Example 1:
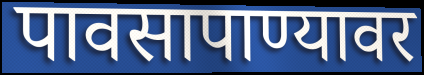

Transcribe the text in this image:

पावसापाण्यावर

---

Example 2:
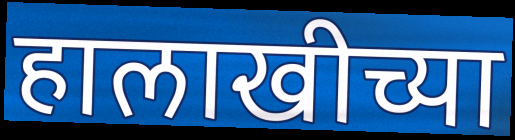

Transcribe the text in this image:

हालाखीच्या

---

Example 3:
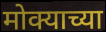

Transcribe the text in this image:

मोक्याच्या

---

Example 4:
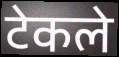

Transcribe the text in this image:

टेकले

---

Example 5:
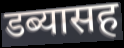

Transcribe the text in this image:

डब्यासह